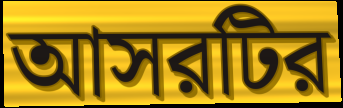
আসরটির